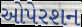
ઓપેરશન